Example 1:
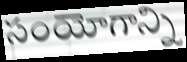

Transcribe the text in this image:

సంయోగాన్ని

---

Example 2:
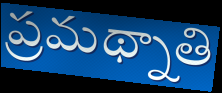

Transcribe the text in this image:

ప్రమథ్నాతి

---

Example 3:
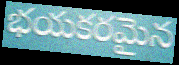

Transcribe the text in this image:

భయకరమైన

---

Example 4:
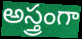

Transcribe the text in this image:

అస్త్రంగా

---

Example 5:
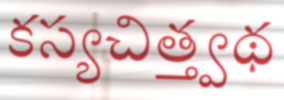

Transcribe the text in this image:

కస్యచిత్త్వథ